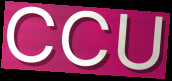
CCU